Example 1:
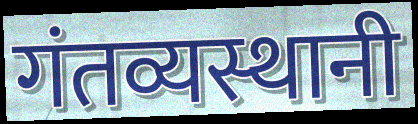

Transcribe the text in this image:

गंतव्यस्थानी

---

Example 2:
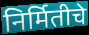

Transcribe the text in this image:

निर्मितीचे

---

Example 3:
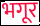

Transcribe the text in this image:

भगूर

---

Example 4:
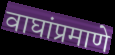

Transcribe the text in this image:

वाघांप्रमाणे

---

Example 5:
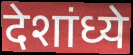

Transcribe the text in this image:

देशांध्ये